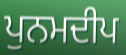
ਪੁਨਮਦੀਪ